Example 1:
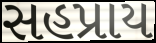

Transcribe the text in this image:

સહપ્રાય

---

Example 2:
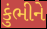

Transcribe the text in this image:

કુંભીને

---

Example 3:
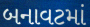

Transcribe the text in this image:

બનાવટમાં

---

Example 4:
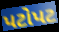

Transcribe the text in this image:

પટોપટ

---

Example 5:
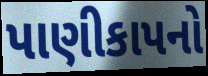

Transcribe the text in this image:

પાણીકાપનો